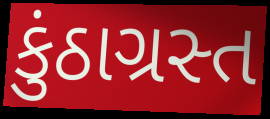
કુંઠાગ્રસ્ત